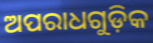
ଅପରାଧଗୁଡ଼ିକ